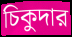
চিকুদার